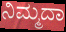
ನಿಮ್ಮದಾ